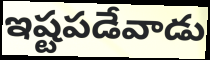
ఇష్టపడేవాడు